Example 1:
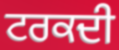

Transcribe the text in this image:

ਟਰਕਦੀ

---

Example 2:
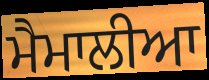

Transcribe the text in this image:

ਮੈਮਾਲੀਆ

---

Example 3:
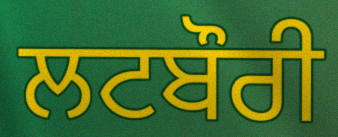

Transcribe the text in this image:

ਲਟਬੌਰੀ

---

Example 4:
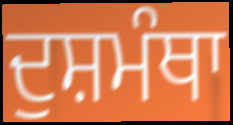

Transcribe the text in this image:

ਦੁਸ਼ਮੰਥਾ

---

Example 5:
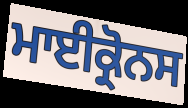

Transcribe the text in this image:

ਮਾਈਕ੍ਰੋਨਸ